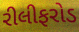
રીલીફરોડ